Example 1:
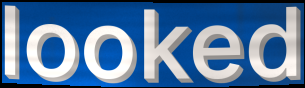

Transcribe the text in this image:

looked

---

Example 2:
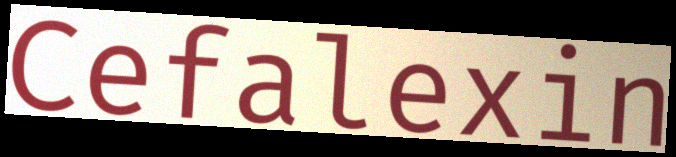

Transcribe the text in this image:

Cefalexin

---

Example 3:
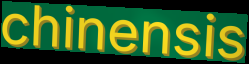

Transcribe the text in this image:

chinensis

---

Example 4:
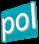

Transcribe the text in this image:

pol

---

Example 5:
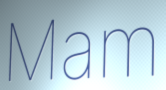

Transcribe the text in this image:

Mam